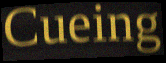
Cueing